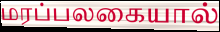
மரப்பலகையால்